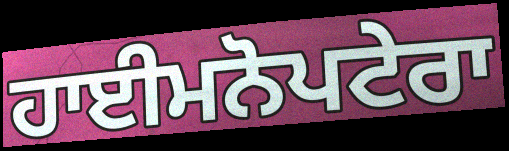
ਹਾਈਮਨੋਪਟੇਰਾ